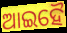
ଆଇହୈ